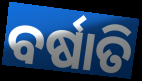
ବର୍ଷାତି